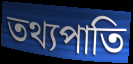
তথ্যপাতি